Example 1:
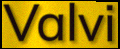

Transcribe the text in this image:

Valvi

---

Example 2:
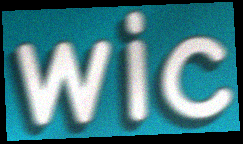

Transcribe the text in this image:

wic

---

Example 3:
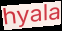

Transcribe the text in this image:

hyala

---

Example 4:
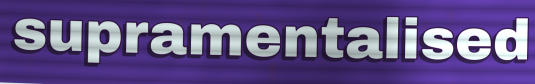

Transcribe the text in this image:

supramentalised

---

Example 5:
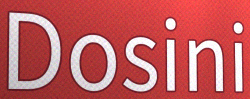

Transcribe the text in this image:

Dosini